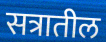
सत्रातील